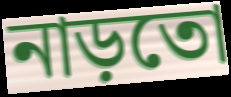
নাড়তো